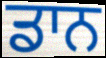
ਡਾਨ